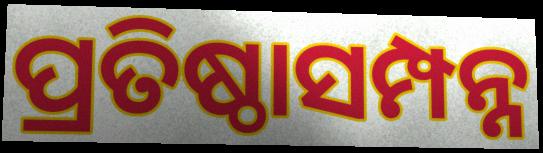
ପ୍ରତିଷ୍ଠାସମ୍ପନ୍ନ